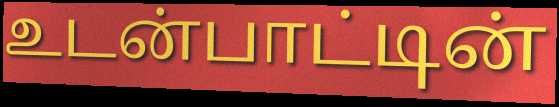
உடன்பாட்டின்